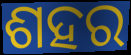
ଶହର